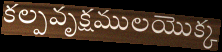
కల్పవృక్షములయొక్క